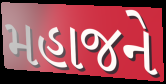
મહાજને